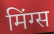
मिंग्स